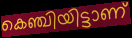
കെഞ്ചിയിട്ടാണ്